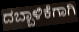
ದಬ್ಬಾಳಿಕೆಗಾಗಿ